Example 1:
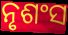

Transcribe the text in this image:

ନୃଶଂସ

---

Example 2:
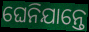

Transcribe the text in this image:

ଘେନିଯାନ୍ତେ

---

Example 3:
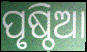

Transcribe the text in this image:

ପୃଷ୍ଠିଆ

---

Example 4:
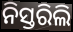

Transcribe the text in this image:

ନିସ୍ତରିଲି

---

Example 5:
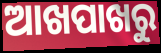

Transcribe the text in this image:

ଆଖପାଖରୁ